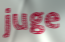
juge